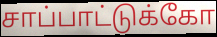
சாப்பாட்டுக்கோ